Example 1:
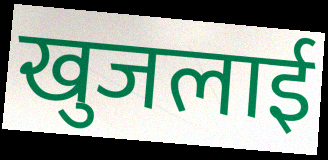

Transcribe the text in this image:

खुजलाई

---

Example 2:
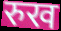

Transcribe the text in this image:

रुख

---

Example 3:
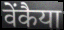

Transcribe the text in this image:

वेंकैया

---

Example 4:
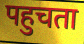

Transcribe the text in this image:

पहुचता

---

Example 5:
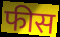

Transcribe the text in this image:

फीस